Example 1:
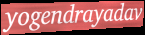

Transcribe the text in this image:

yogendrayadav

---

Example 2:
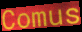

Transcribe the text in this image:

Comus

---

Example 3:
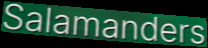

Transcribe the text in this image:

Salamanders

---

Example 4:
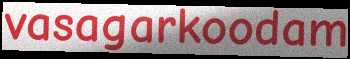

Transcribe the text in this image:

vasagarkoodam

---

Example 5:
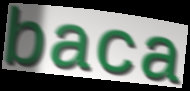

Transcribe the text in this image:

baca